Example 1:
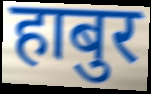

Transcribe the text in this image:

हाबुर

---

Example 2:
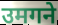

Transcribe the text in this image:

उमगने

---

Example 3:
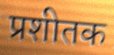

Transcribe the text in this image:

प्रशीतक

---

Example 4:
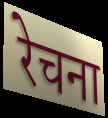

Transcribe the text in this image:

रेचना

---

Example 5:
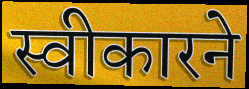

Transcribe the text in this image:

स्वीकारने